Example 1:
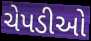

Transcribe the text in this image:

ચેપડીઓ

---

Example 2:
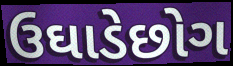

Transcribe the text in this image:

ઉઘાડેછોગ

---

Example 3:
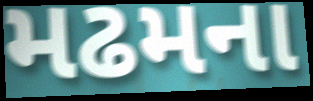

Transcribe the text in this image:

મઢમના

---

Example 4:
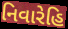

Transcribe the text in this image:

નિવારેહિ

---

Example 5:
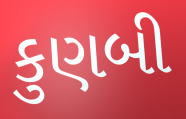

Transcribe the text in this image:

કુણબી